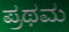
ಪ್ರಥಮ